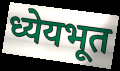
ध्येयभूत